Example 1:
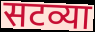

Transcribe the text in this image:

सटव्या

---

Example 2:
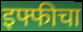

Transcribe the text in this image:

इफ्फीचा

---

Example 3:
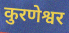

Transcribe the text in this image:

कुरणेश्वर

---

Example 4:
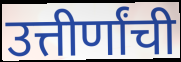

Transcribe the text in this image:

उत्तीर्णांची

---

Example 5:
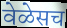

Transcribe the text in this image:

वेळेसच